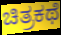
ಚಿತ್ರಕಥೆ